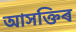
আসক্তিৰ